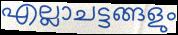
എല്ലാചട്ടങ്ങളും